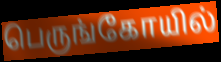
பெருங்கோயில்